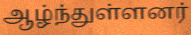
ஆழ்ந்துள்ளனர்